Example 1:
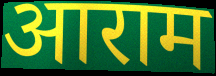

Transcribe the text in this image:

आराम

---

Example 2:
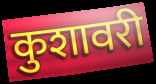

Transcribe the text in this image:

कुशावरी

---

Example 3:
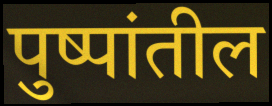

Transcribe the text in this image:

पुष्पांतील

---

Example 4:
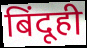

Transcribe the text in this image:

बिंदूही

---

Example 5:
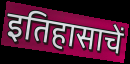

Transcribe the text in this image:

इतिहासाचें